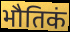
भौतिकं